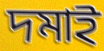
দমাই